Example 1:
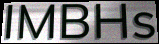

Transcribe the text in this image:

IMBHs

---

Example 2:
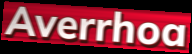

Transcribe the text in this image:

Averrhoa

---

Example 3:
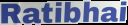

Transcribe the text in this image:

Ratibhai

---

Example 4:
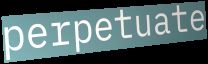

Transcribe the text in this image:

perpetuate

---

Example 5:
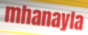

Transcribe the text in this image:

mhanayla